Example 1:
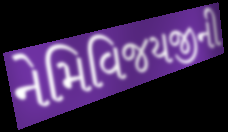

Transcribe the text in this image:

નેમિવિજયજીની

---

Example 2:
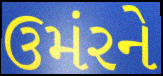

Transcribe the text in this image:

ઉમંરને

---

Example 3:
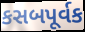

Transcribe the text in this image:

કસબપૂર્વક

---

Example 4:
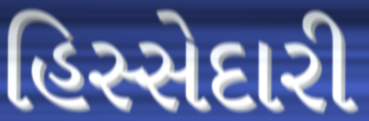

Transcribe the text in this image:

હિસ્સેદારી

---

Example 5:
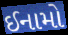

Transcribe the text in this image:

ઈનામો